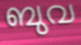
ബുവ